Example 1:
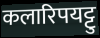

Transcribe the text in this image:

कलारिपयट्टु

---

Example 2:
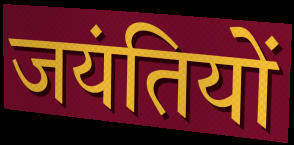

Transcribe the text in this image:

जयंतियों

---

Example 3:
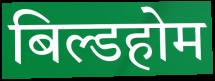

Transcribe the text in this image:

बिल्डहोम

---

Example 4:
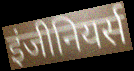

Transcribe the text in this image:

इंजीनियर्स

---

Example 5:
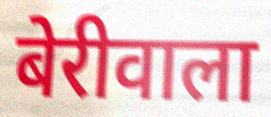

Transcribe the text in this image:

बेरीवाला